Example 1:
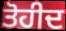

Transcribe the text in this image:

ਤੋਹੀਦ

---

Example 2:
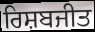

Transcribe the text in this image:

ਰਿਸ਼ਬਜੀਤ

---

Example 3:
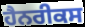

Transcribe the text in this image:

ਹੈਨਰੀਕਸ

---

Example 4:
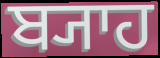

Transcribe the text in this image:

ਬ੍ਯਾਹ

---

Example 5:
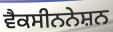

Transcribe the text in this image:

ਵੈਕਸੀਨਨੇਸ਼ਨ